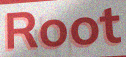
Root